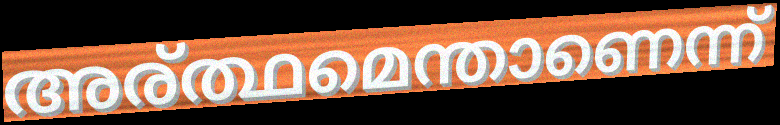
അര്ത്ഥമെന്താണെന്ന്